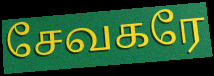
சேவகரே